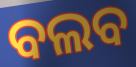
ବଲବ